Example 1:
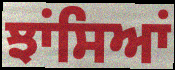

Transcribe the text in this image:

ਝਾਂਸਿਆਂ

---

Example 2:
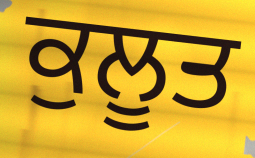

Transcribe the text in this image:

ਕੁਲੂਤ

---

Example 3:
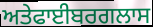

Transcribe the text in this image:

ਅਤੇਫਾਈਬਰਗਲਾਸ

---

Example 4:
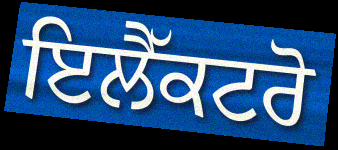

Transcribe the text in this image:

ਇਲੈੱਕਟਰੋ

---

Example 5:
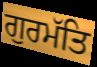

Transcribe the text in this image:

ਗੁਰਮੱਤਿ